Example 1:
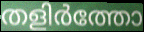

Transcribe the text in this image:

തളിർത്തോ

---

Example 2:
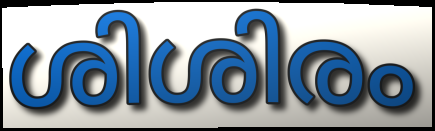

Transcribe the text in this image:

ശിശിരം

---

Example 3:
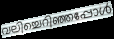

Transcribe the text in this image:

വലിച്ചെറിഞ്ഞപ്പോൾ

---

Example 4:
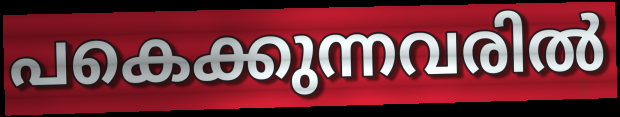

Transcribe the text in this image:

പകെക്കുന്നവരിൽ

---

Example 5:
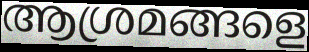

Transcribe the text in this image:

ആശ്രമങ്ങളെ